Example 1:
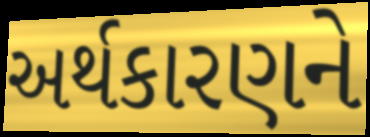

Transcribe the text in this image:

અર્થકારણને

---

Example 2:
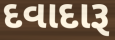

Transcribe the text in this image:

દવાદારૂ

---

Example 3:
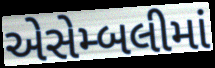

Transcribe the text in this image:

એસેમ્બલીમાં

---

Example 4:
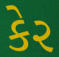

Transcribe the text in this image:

કેર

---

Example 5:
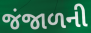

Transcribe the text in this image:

જંજાળની